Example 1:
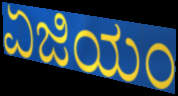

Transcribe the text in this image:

ಏಜಿಯಂ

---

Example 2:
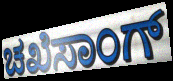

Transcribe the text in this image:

ಚಖೆಸಾಂಗ್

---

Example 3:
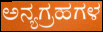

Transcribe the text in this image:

ಅನ್ಯಗ್ರಹಗಳ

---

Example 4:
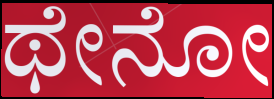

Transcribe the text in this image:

ಥೇನೋ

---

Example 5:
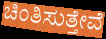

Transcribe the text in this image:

ಚಿಂತಿಸುತ್ತೇವೆ